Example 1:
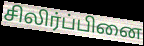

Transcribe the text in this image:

சிலிர்ப்பினை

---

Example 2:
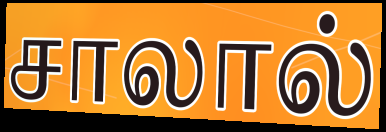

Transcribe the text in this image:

சாலால்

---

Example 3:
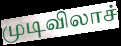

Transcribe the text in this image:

முடிவிலாச்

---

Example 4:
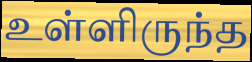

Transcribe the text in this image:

உள்ளிருந்த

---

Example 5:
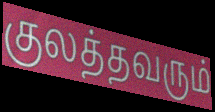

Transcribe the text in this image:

குலத்தவரும்